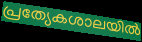
പ്രത്യേകശാലയിൽ